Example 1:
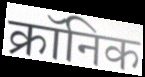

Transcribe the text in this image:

क्रॉनिक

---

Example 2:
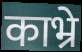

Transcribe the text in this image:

काभ्रे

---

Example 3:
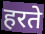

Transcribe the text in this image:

हरते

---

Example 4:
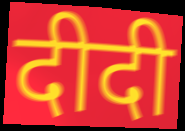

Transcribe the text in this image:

दीदी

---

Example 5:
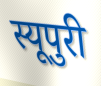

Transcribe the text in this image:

स्यूपुरी